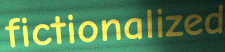
fictionalized